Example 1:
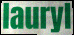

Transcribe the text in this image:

lauryl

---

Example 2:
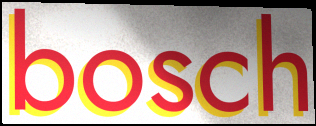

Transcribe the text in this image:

bosch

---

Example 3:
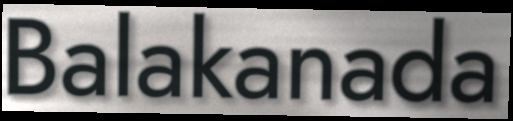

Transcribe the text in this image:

Balakanada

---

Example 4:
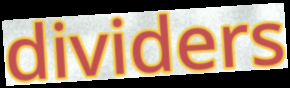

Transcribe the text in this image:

dividers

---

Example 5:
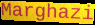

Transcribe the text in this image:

Marghazi